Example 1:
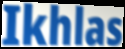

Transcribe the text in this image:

Ikhlas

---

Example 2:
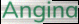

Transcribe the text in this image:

Angina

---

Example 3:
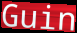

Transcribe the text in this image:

Guin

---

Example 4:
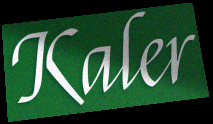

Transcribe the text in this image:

Kaler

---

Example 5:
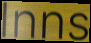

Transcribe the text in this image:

Inns